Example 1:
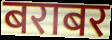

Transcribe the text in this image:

बराबर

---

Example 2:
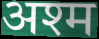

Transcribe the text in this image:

अश्म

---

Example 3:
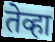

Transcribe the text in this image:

तेव्हा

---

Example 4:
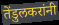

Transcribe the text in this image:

तेंडुलकरांनी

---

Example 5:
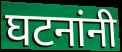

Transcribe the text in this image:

घटनांनी